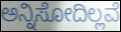
ಅನ್ನಿಸೋದಿಲ್ಲವೆ